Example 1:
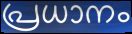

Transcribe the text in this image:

പ്രധാനം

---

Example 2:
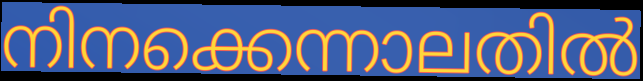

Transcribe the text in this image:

നിനക്കെന്നാലതിൽ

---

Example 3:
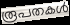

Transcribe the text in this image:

രൂപതകൾ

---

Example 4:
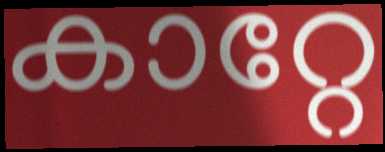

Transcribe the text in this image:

കാറ്റേ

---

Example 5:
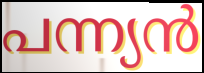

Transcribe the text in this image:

പന്ന്യൻ